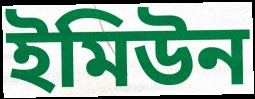
ইমিউন